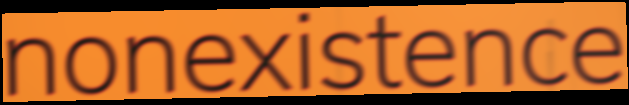
nonexistence